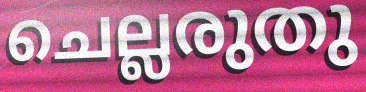
ചെല്ലരുതു